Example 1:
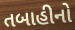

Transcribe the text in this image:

તબાહીનો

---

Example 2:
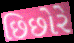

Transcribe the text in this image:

છિછોરે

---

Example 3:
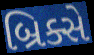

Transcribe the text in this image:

બ્રિક્સે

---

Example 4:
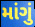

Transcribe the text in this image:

માંગું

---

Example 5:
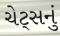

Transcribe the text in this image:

ચેટ્સનું